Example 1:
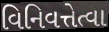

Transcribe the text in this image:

વિનિવત્તેત્વા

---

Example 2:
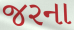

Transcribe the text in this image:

જરના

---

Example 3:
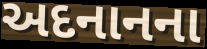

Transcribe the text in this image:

અદનાનના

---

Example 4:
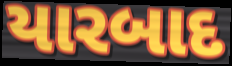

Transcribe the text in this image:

યારબાદ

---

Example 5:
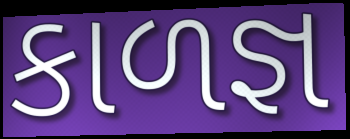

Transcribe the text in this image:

કાળજ્ઞ